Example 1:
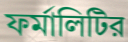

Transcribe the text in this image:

ফর্মালিটির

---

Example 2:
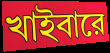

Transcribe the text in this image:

খাইবারে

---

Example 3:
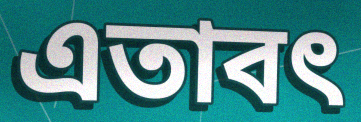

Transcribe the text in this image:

এতাবৎ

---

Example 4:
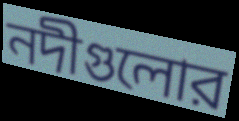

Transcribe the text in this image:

নদীগুলোর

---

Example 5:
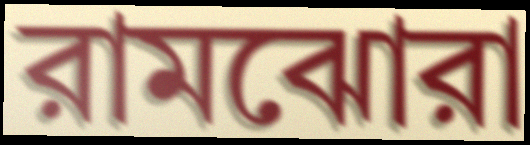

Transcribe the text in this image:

রামঝোরা